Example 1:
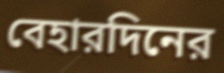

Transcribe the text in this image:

বেহারদিনের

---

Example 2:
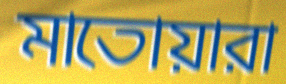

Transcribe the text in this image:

মাতোয়ারা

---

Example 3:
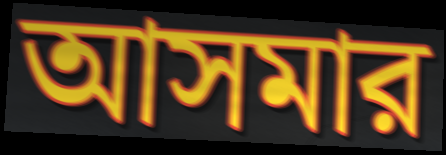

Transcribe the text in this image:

আসমার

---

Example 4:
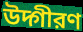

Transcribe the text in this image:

উদ্গীরণ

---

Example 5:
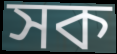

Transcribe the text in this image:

সক